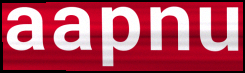
aapnu